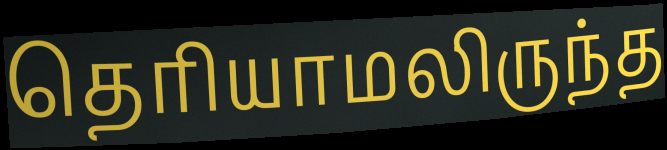
தெரியாமலிருந்த